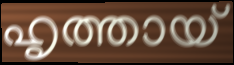
ഹൃത്തായ്